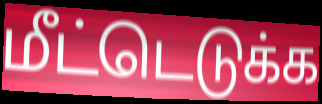
மீட்டெடுக்க